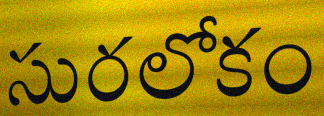
సురలోకం